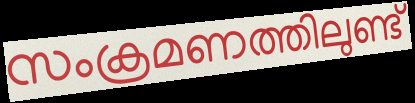
സംക്രമണത്തിലുണ്ട്